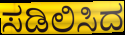
ಸಡಿಲಿಸಿದ